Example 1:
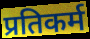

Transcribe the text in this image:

प्रतिकर्म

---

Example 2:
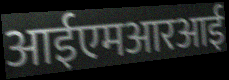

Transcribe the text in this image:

आईएमआरआई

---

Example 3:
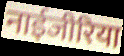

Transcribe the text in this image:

नाईजीरिया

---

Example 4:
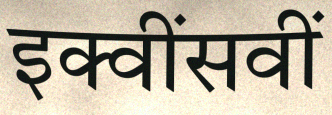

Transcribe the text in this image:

इक्वींसवीं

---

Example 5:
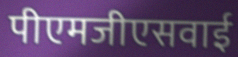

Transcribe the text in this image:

पीएमजीएसवाई